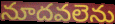
నూదవలెను